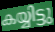
കയ്യിട്ടു